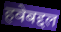
हवेबद्दल